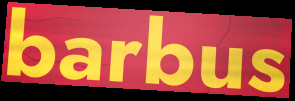
barbus